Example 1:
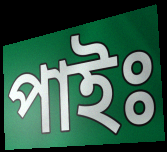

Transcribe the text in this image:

পাইঃ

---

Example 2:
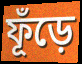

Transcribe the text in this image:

ফূঁড়ে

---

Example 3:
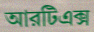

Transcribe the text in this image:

আরটিএক্স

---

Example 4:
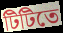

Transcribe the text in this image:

টিটিতে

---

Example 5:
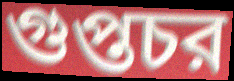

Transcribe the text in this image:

গুপ্তচর